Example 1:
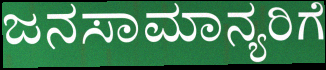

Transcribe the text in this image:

ಜನಸಾಮಾನ್ಯರಿಗೆ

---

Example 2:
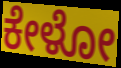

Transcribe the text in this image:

ಕೇಳೋ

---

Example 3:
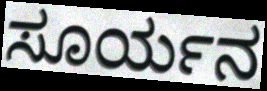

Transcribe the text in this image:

ಸೂರ್ಯನ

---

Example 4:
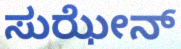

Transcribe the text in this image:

ಸುಝೇನ್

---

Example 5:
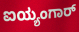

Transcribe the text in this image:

ಐಯ್ಯಂಗಾರ್